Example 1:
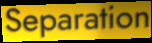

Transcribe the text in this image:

Separation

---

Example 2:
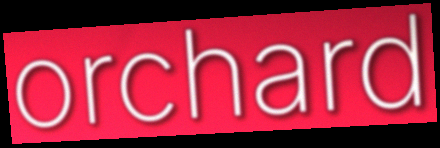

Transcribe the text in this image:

orchard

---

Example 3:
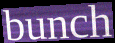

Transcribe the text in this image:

bunch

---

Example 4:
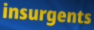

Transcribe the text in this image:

insurgents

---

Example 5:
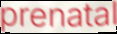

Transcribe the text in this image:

prenatal